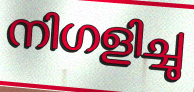
നിഗളിച്ചു